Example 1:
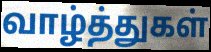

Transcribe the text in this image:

வாழ்த்துகள்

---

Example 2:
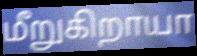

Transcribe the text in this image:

மீறுகிறாயா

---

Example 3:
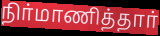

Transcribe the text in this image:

நிர்மாணித்தார்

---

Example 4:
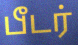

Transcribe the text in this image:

பீடர்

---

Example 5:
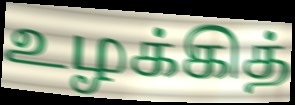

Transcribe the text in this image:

உழக்கித்